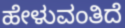
ಹೇಳುವಂತಿದೆ